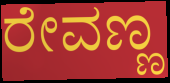
ರೇವಣ್ಣ